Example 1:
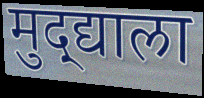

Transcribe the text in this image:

मुद्द्याला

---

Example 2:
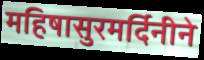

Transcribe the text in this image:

महिषासुरमर्दिनीने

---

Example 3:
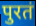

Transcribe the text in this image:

पुरतं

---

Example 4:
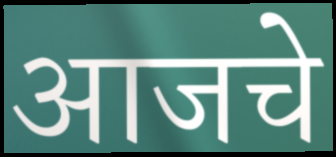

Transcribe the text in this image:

आजचे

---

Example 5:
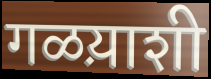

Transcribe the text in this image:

गळय़ाशी